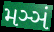
મઞ્ઞં